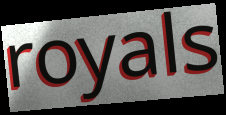
royals